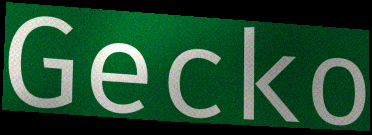
Gecko